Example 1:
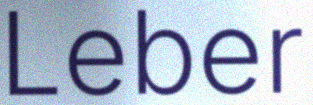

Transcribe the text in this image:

Leber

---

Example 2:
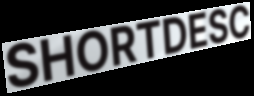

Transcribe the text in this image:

SHORTDESC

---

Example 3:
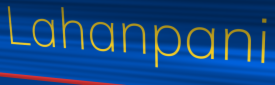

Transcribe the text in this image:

Lahanpani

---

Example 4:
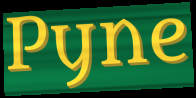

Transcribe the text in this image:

Pyne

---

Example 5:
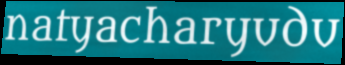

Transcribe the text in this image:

natyacharyudu